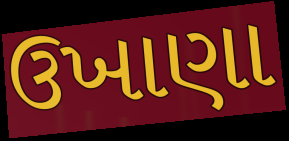
ઉખાણા